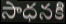
సాధనకి